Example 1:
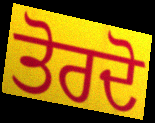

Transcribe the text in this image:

ਤੋਰਦੋ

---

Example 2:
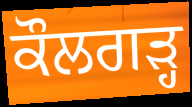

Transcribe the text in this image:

ਕੌਲਗੜ੍ਹ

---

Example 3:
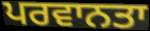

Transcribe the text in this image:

ਪਰਵਾਨਤਾ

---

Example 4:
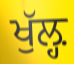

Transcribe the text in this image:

ਖੁੱਲ਼੍ਹ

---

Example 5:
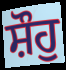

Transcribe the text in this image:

ਸ਼ੌਹੁ